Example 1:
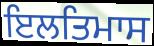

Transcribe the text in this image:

ਇਲਤਿਮਾਸ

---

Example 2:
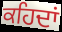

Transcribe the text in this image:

ਕਹਿਦਾਂ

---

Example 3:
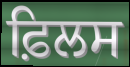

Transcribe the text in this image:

ਫ਼ਿਲਸ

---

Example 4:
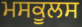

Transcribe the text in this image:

ਮਸਕੂਲਸ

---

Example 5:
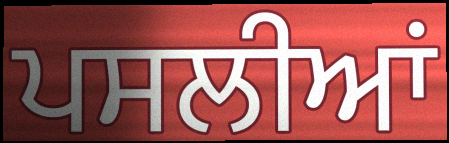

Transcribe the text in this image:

ਪਸਲੀਆਂ